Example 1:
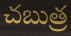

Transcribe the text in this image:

చబుత్ర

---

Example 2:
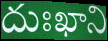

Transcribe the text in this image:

దుఃఖాని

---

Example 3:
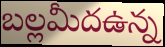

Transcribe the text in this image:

బల్లమీదఉన్న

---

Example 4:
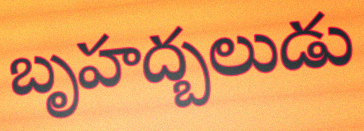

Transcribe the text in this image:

బృహద్బలుడు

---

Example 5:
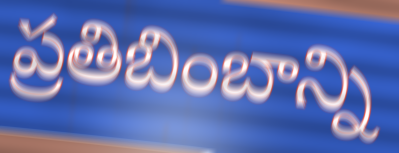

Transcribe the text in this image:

ప్రతిబింబాన్ని